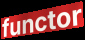
functor